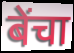
बेंचा